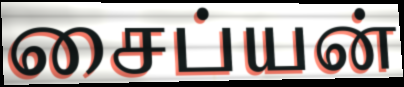
சைப்யன்